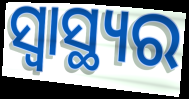
ସ୍ୱାସ୍ଥ୍ୟର